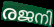
രജനി